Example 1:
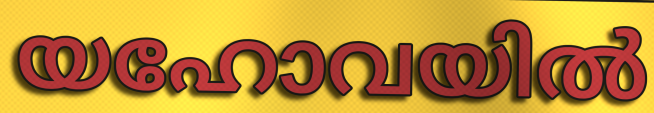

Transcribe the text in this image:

യഹോവയിൽ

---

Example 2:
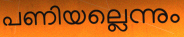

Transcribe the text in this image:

പണിയല്ലെന്നും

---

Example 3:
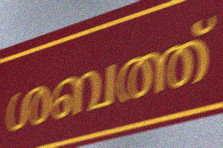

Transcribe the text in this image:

ശബത്ത്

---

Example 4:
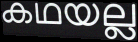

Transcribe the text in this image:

കഥയല്ല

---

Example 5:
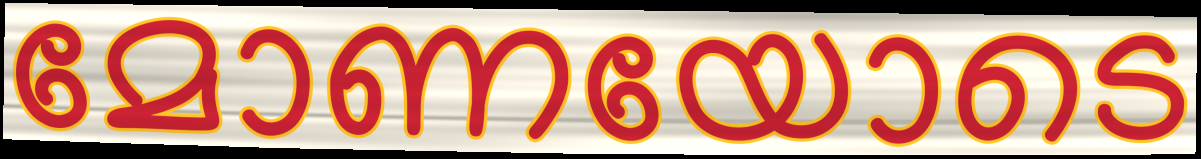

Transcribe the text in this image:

മോണയോടെ